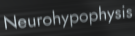
Neurohypophysis